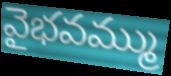
వైభవమ్ము